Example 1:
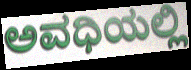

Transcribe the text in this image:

ಅವಧಿಯಲ್ಲಿ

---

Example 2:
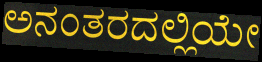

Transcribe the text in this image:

ಅನಂತರದಲ್ಲಿಯೇ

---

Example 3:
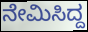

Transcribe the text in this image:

ನೇಮಿಸಿದ್ದ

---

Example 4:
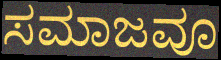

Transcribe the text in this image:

ಸಮಾಜವೂ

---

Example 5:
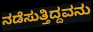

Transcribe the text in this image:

ನಡೆಸುತ್ತಿದ್ದವನು